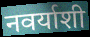
नवर्याशी